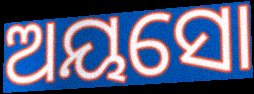
ଅୟସୋ